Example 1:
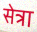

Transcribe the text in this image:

सेत्रा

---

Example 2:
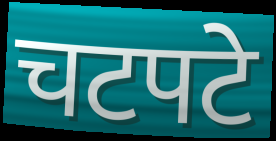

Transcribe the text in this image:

चटपटे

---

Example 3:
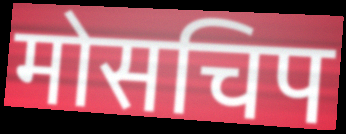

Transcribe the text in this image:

मोसचिप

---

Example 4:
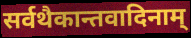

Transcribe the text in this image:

सर्वथैकान्तवादिनाम्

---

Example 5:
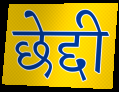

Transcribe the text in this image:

छेद्दी